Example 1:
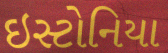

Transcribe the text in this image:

ઇસ્ટોનિયા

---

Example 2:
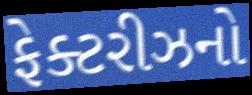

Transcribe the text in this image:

ફેક્ટરીઝનો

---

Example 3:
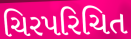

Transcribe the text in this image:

ચિરપરિચિત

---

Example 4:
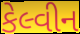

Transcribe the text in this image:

કેલ્વીન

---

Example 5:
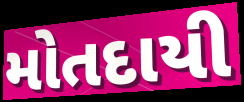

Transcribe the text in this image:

મોતદાયી